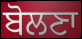
ਬੋਲਣਾ